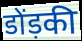
डोंड़की